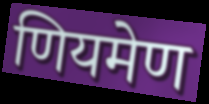
णियमेण